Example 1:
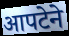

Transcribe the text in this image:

आपटेने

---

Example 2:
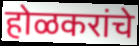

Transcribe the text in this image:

होळकरांचे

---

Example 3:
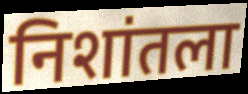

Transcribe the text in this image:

निशांतला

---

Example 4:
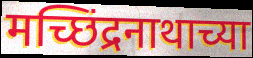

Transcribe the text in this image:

मच्छिंद्रनाथाच्या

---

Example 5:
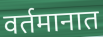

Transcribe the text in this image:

वर्तमानात